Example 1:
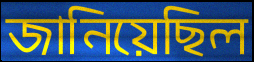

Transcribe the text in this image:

জানিয়েছিল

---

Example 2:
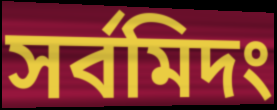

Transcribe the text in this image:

সর্বমিদং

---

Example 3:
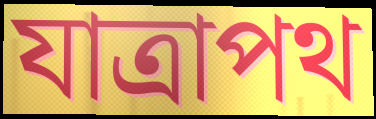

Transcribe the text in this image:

যাত্রাপথ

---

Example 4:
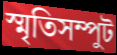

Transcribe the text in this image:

স্মৃতিসম্পুট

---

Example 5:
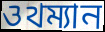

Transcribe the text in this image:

ওথম্যান